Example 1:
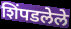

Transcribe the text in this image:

शिंपडलेले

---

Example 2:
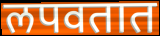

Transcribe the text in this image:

लपवतात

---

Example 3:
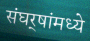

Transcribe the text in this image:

संघर्षांमध्ये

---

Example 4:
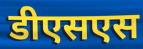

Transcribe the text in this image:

डीएसएस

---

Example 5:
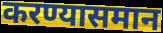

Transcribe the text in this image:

करण्यासमान